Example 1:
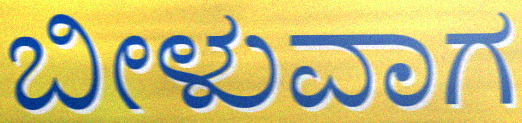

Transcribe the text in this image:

ಬೀಳುವಾಗ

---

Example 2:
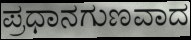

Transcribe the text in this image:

ಪ್ರಧಾನಗುಣವಾದ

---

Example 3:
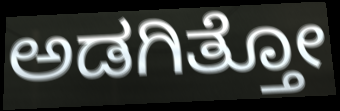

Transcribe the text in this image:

ಅಡಗಿತ್ತೋ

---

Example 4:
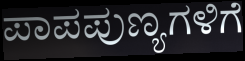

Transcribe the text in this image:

ಪಾಪಪುಣ್ಯಗಳಿಗೆ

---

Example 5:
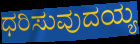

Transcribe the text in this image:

ಧರಿಸುವುದಯ್ಯ